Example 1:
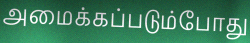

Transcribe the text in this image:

அமைக்கப்படும்போது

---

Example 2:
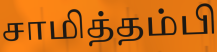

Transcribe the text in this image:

சாமித்தம்பி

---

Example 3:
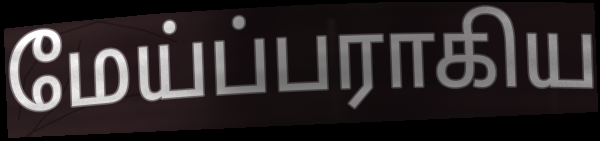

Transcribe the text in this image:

மேய்ப்பராகிய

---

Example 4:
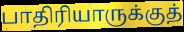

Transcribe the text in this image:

பாதிரியாருக்குத்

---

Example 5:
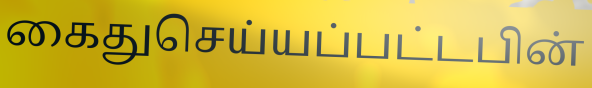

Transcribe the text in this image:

கைதுசெய்யப்பட்டபின்